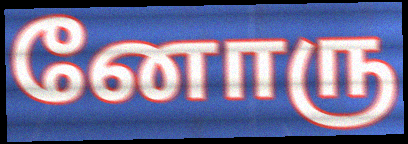
னோரு